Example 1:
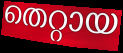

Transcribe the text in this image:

തെറ്റായ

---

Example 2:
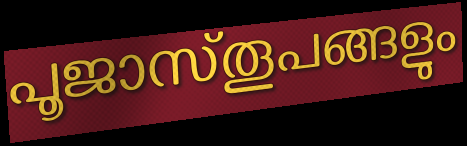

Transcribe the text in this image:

പൂജാസ്‌തൂപങ്ങളും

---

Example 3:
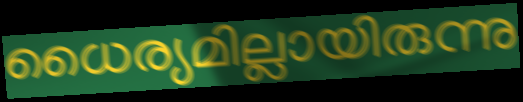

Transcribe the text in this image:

ധൈര്യമില്ലായിരുന്നു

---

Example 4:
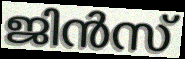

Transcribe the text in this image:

ജിൻസ്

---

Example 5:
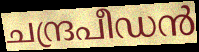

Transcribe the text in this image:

ചന്ദ്രപീഡൻ